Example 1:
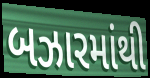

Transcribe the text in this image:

બઝારમાંથી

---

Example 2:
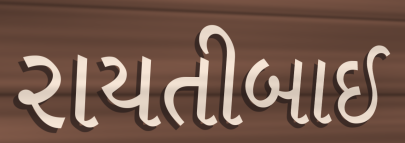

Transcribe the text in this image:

રાયતીબાઈ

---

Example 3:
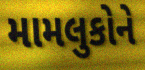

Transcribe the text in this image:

મામલુકોને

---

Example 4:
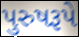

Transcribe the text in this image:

પુરુષરૂપે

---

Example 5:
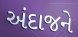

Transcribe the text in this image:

અંદાજને